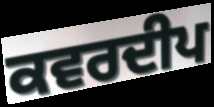
ਕਵਰਦੀਪ